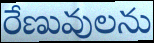
రేణువులను